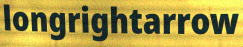
longrightarrow